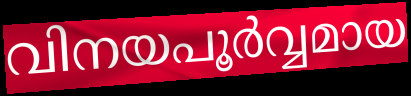
വിനയപൂർവ്വമായ